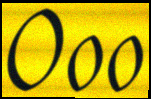
Ooo